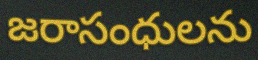
జరాసంధులను